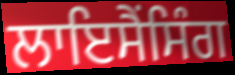
ਲਾਇਸੈਂਸਿੰਗ